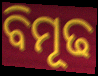
ବିମୂଢ